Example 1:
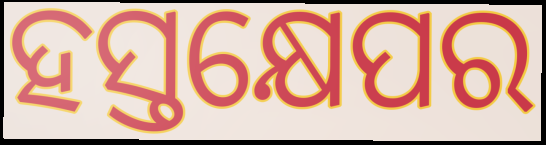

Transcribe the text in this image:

ହସ୍ତକ୍ଷେପର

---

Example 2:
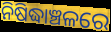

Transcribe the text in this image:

ନିଷିଦ୍ଧାଞ୍ଚଳରେ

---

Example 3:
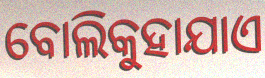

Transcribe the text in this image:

ବୋଲିକୁହାଯାଏ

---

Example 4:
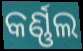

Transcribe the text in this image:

କର୍ଣ୍ଣଲ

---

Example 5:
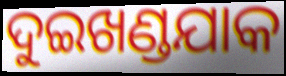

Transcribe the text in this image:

ଦୁଇଖଣ୍ଡଯାକ